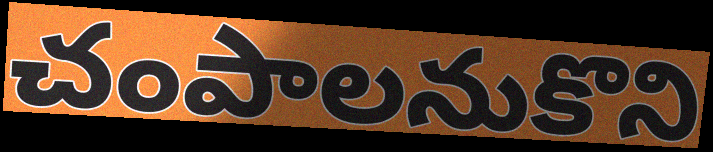
చంపాలనుకొని